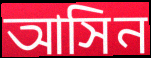
আসিন